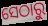
ସେଠାରୁ